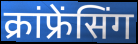
क्रांफ्रेंसिंग